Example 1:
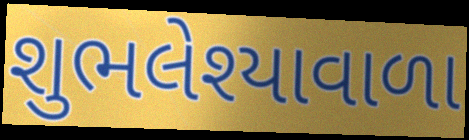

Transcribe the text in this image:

શુભલેશ્યાવાળા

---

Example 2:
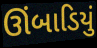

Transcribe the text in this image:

ઊંબાડિયું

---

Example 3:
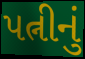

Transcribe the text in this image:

પત્નીનું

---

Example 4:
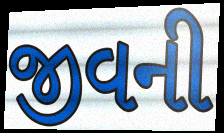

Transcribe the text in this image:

જીવની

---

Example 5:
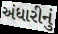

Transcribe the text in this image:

અંધારીનું